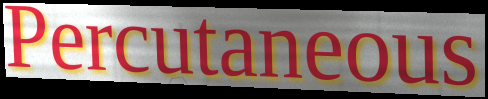
Percutaneous